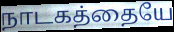
நாடகத்தையே